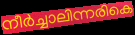
നീർച്ചാലിന്നരികെ